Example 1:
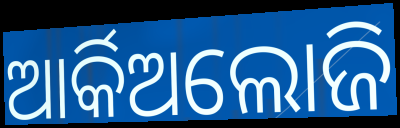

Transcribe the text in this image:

ଆର୍କିଅଲୋଜି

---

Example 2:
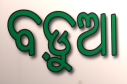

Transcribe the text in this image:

ବଡ଼ୁଆ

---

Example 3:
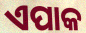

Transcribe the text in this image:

ଏପାକ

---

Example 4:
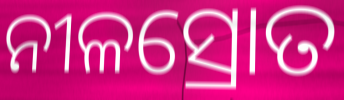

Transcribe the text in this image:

ନୀଳସ୍ରୋତ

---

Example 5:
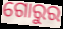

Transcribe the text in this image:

ଗୋରୁର